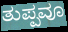
ತುಪ್ಪವೂ